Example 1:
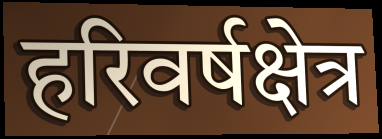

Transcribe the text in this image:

हरिवर्षक्षेत्र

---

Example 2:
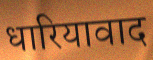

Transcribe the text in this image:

धारियावाद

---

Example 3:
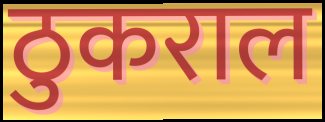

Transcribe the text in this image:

ठुकराल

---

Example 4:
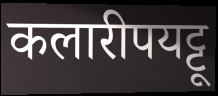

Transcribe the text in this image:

कलारीपयट्टू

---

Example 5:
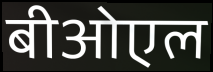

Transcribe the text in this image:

बीओएल